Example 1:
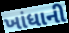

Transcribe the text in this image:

ખાંધાની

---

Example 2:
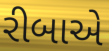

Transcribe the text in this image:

રીબાએ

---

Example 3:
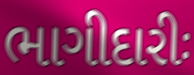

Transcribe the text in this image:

ભાગીદારીઃ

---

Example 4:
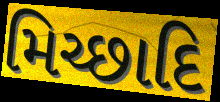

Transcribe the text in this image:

મિચ્છાદિ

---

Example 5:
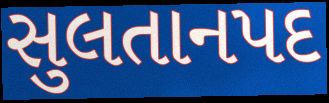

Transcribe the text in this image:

સુલતાનપદ